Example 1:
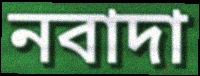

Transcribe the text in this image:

নবাদা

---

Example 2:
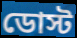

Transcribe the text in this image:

ডোস্ট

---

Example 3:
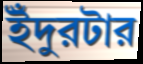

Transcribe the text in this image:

ইঁদুরটার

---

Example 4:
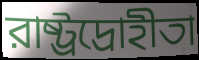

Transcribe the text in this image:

রাষ্ট্রদ্রোহীতা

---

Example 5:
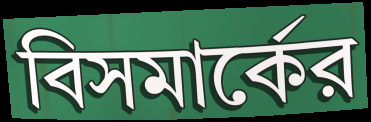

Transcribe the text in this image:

বিসমার্কের